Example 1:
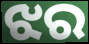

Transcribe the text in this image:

ଝର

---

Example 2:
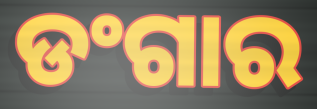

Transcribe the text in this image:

ଡଂଗାର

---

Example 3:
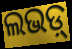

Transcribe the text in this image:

ଲଭଡ଼୍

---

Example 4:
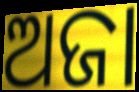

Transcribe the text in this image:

ଅଜା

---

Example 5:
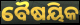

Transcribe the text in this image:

ବୈଷୟିକ